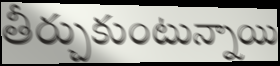
తీర్చుకుంటున్నాయి